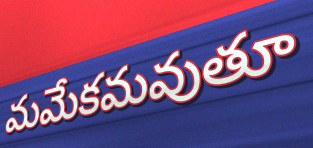
మమేకమవుతూ